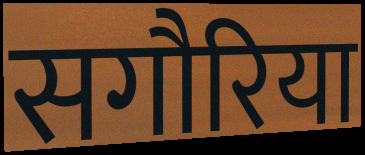
सगौरिया